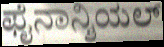
ಫೈನಾನ್ಶಿಯಲ್